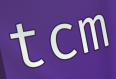
tcm